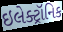
ઇલેક્ટ્રૉનિક